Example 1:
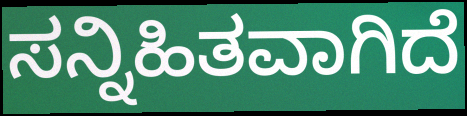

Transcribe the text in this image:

ಸನ್ನಿಹಿತವಾಗಿದೆ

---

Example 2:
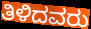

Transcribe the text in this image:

ತಿಳಿದವರು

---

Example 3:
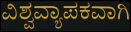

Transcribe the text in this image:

ವಿಶ್ವವ್ಯಾಪಕವಾಗಿ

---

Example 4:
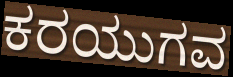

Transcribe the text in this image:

ಕರಯುಗವ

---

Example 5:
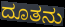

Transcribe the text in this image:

ದೂತನು